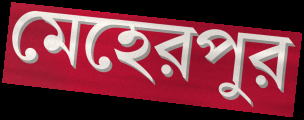
মেহেরপুর